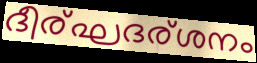
ദീര്ഘദര്ശനം